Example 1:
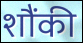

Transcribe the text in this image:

शौंकी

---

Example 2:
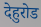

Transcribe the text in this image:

देहुरोड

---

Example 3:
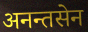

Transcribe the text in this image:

अनन्तसेन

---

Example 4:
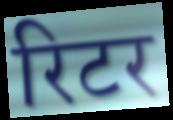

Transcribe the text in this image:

रिटर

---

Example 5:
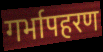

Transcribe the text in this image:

गर्भापहरण